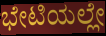
ಭೇಟಿಯಲ್ಲೇ